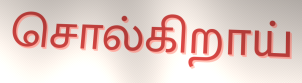
சொல்கிறாய்